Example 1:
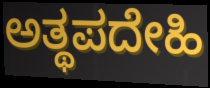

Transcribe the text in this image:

ಅತ್ಥಪದೇಹಿ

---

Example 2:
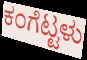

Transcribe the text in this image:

ಕಂಗೆಟ್ಟಳು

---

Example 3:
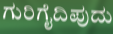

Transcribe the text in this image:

ಗುರಿಗೈದಿಪುದು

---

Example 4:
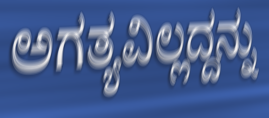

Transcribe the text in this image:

ಅಗತ್ಯವಿಲ್ಲದ್ದನ್ನು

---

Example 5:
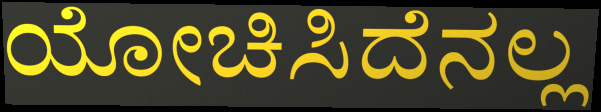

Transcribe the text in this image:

ಯೋಚಿಸಿದೆನಲ್ಲ